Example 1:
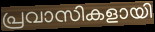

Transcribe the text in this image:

പ്രവാസികളായി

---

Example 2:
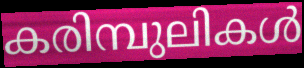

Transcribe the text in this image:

കരിമ്പുലികൾ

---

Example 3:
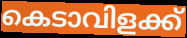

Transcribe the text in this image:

കെടാവിളക്ക്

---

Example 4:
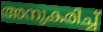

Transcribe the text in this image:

അനുകരിച്ച്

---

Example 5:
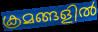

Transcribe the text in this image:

ക്രമങ്ങളിൽ